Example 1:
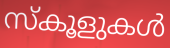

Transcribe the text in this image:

സ്കൂളുകൾ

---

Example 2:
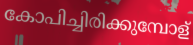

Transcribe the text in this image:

കോപിച്ചിരിക്കുമ്പോള്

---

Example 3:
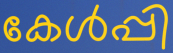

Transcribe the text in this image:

കേൾപ്പി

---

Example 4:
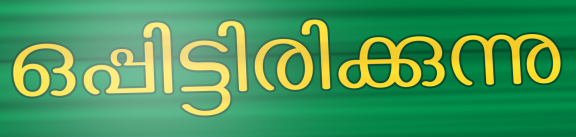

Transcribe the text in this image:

ഒപ്പിട്ടിരിക്കുന്നു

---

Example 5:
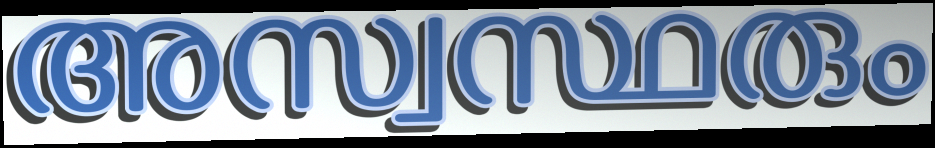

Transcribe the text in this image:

അസ്വസ്ഥരും